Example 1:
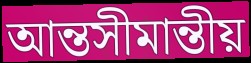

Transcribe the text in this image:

আন্তসীমান্তীয়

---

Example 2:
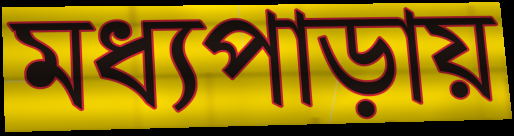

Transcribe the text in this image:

মধ্যপাড়ায়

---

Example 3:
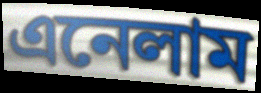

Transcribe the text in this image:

এনেলাম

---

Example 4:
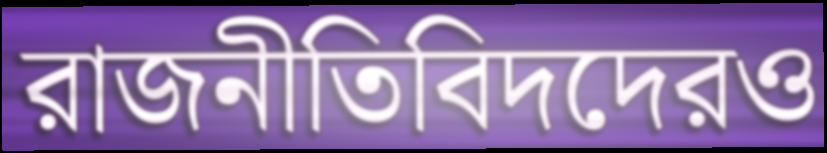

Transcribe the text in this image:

রাজনীতিবিদদেরও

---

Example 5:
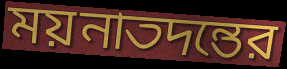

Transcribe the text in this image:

ময়নাতদন্তের